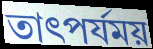
তাৎপর্যময়